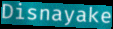
Disnayake